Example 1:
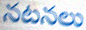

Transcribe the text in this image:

నటనలు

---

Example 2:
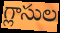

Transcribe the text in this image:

గ్లాసుల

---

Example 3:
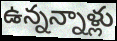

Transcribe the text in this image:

ఉన్నన్నాళ్లు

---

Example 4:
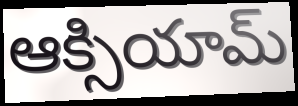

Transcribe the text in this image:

ఆక్సియామ్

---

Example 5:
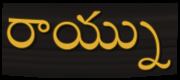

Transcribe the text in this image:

రాయ్ను